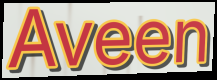
Aveen